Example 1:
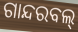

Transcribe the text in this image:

ଗାନ୍ଦରବଲ୍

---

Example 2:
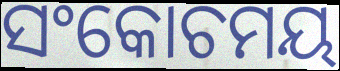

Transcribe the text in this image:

ସଂକୋଚମୟ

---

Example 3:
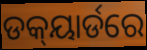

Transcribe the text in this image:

ଡକ୍‍ୟାର୍ଡରେ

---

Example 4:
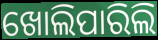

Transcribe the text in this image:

ଖୋଲିପାରିଲି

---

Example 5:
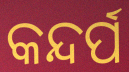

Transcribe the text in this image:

କନ୍ଦର୍ପ